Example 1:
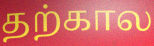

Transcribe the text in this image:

தற்கால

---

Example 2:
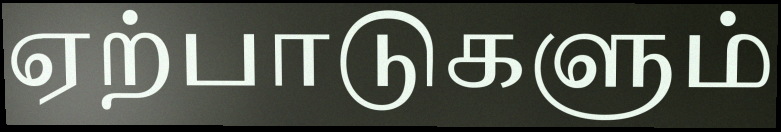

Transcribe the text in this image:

ஏற்பாடுகளும்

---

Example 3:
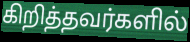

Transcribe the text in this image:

கிறித்தவர்களில்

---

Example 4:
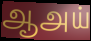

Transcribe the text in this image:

ஆஅய்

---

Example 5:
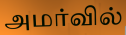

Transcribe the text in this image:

அமர்வில்